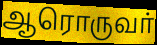
ஆரொருவர்